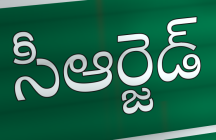
సీఆర్జెడ్